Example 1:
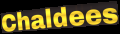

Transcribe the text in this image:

Chaldees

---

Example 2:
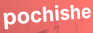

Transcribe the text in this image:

pochishe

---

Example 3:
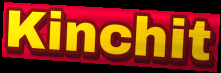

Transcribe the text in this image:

Kinchit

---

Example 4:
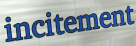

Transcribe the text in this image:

incitement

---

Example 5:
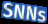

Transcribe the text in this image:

SNNs